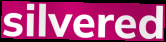
silvered